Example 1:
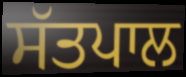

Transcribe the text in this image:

ਸੱਤਪਾਲ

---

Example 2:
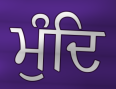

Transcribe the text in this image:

ਮੁੰਦਿ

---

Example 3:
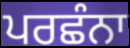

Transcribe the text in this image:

ਪਰਛੰਨਾ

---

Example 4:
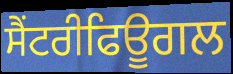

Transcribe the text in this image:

ਸੈਂਟਰੀਫਿਊਗਲ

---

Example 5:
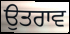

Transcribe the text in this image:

ਉਤਰਾਵ